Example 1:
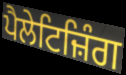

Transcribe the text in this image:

ਪੈਲੇਟਿਜ਼ਿੰਗ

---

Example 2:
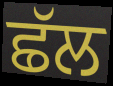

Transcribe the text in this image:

ਛੱਲ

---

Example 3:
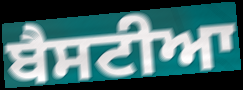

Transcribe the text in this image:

ਬੈਸਟੀਆ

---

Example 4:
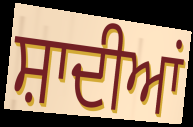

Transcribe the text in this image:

ਸ਼ਾਦੀਆਂ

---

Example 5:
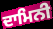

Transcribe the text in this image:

ਦਾਮਿਨੀ